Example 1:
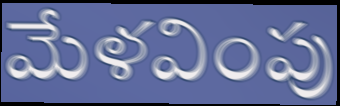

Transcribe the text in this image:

మేళవింపు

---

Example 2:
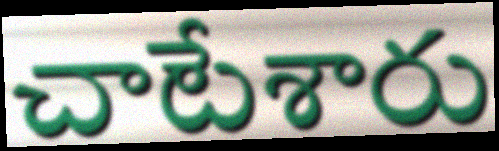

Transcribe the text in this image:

చాటేశారు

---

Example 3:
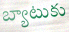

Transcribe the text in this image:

బ్యాటుకు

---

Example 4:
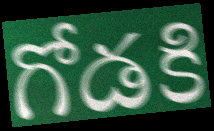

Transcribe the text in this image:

గోడకి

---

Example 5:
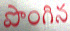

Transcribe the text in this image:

పొంగిన